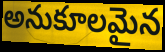
అనుకూలమైన